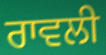
ਰਾਵਲੀ